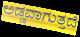
ಅಡ್ಡವಾಗುತ್ತದೆ